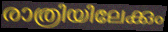
രാത്രിയിലേക്കും